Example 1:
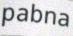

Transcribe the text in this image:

pabna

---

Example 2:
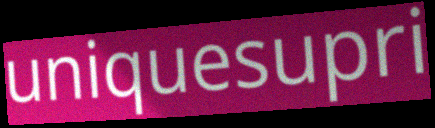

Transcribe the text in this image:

uniquesupri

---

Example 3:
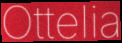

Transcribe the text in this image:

Ottelia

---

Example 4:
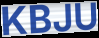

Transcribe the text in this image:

KBJU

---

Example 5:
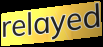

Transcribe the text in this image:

relayed